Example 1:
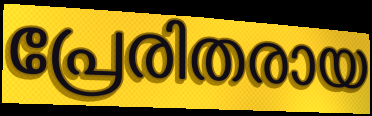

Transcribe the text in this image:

പ്രേരിതരായ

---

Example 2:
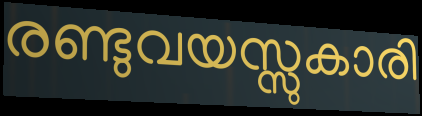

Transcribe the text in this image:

രണ്ടുവയസ്സുകാരി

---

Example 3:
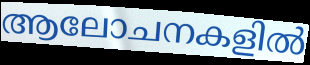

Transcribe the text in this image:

ആലോചനകളിൽ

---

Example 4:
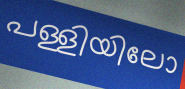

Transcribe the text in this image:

പള്ളിയിലോ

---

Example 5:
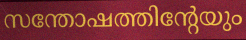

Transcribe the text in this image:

സന്തോഷത്തിന്റേയും